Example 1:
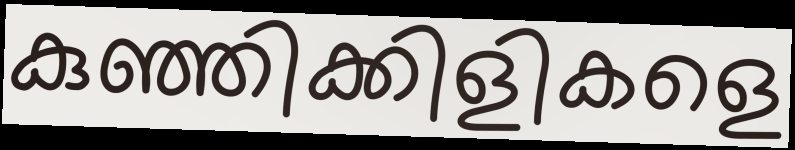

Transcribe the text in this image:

കുഞ്ഞിക്കിളികളെ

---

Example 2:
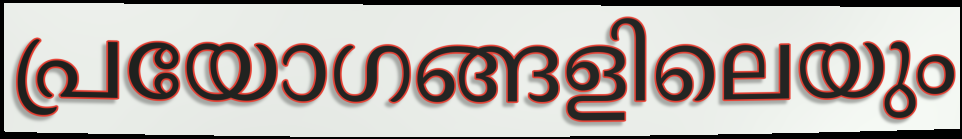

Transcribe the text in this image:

പ്രയോഗങ്ങളിലെയും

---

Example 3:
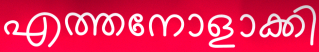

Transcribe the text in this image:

എത്തനോളാക്കി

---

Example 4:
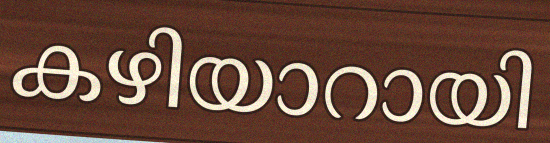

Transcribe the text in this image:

കഴിയാറായി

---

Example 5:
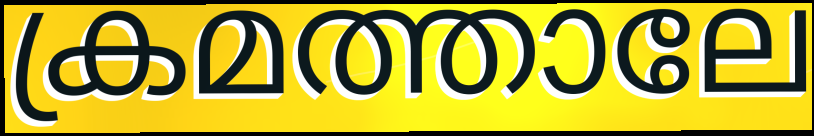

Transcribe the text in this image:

ക്രമത്താലേ